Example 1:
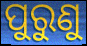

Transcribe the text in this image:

ପୁରୁଣୁ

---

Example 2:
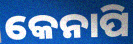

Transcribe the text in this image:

କେନାପି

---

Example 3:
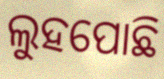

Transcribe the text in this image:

ଲୁହପୋଛି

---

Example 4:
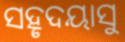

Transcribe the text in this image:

ସହୃଦୟାସୁ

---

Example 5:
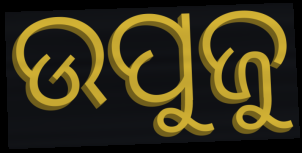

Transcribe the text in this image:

ଉପୁଜୁ